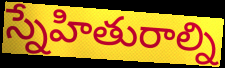
స్నేహితురాల్ని